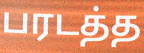
பரடத்த